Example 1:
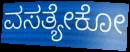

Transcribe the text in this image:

ವಸತ್ಯೇಕೋ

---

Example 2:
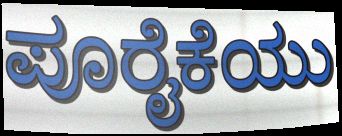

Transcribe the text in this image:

ಪೂರೈಕೆಯು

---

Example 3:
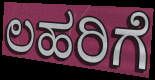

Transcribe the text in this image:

ಲಹರಿಗೆ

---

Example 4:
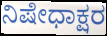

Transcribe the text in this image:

ನಿಷೇಧಾಕ್ಷರ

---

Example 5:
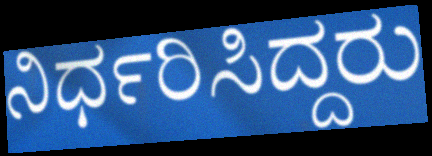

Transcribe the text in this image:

ನಿರ್ಧರಿಸಿದ್ದರು